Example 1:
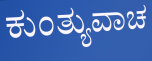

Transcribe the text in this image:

ಕುಂತ್ಯುವಾಚ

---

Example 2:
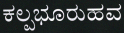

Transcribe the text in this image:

ಕಲ್ಪಭೂರುಹವ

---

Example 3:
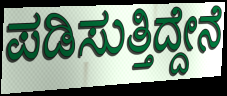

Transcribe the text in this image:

ಪಡಿಸುತ್ತಿದ್ದೇನೆ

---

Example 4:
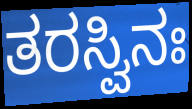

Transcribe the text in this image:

ತರಸ್ವಿನಃ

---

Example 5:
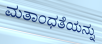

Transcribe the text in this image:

ಮತಾಂಧತೆಯನ್ನು